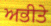
ਅਭੀਤੇ